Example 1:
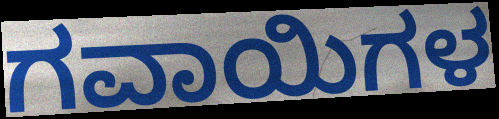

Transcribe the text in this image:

ಗವಾಯಿಗಳ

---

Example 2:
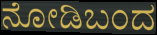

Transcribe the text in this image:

ನೋಡಿಬಂದ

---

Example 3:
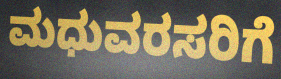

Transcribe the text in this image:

ಮಧುವರಸರಿಗೆ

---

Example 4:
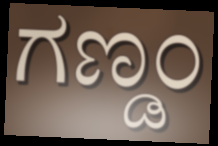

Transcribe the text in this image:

ಗಣ್ಡಂ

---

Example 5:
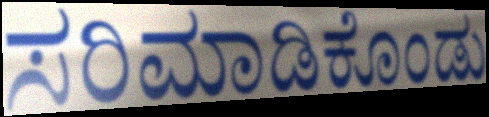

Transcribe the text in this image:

ಸರಿಮಾಡಿಕೊಂಡು